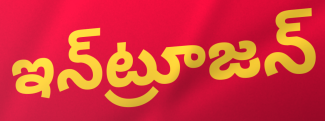
ఇన్‌ట్రూజన్